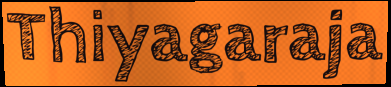
Thiyagaraja